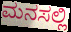
ಮನಸಲ್ಲಿ